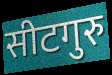
सीटगुरु